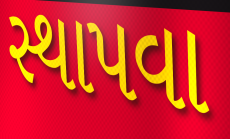
સ્થાપવા